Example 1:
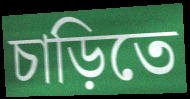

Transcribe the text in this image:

চাড়িতে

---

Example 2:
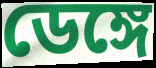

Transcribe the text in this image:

ডেঙ্গে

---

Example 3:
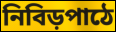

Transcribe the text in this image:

নিবিড়পাঠে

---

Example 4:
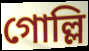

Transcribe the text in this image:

গোল্লি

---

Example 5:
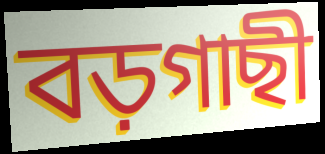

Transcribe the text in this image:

বড়গাছী